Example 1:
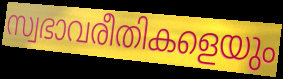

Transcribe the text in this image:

സ്വഭാവരീതികളെയും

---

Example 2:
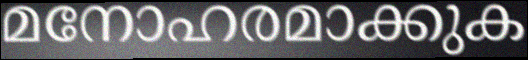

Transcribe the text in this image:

മനോഹരമാക്കുക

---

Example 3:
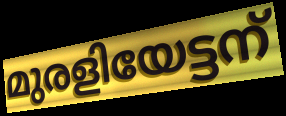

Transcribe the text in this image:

മുരളിയേട്ടന്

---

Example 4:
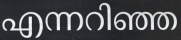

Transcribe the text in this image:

എന്നറിഞ്ഞ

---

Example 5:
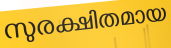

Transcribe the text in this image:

സുരക്ഷിതമായ